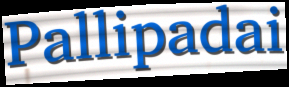
Pallipadai